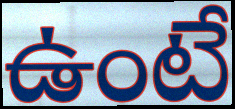
ఉంటే